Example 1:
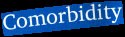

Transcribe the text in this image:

Comorbidity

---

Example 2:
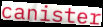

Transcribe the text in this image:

canister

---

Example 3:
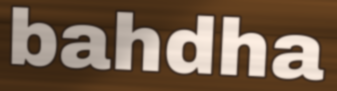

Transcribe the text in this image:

bahdha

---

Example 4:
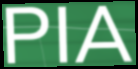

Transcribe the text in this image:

PIA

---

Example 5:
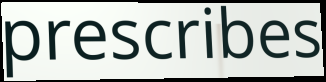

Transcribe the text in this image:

prescribes